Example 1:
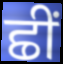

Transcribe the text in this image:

ਛੀਂ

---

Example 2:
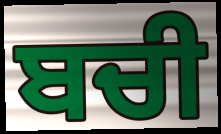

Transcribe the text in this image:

ਬਚੀ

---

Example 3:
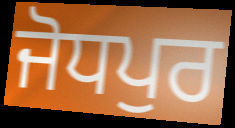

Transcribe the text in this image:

ਜੋਧਪੁਰ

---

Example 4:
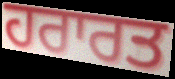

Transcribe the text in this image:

ਹਰਾਰਤ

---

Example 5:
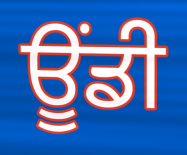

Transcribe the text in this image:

ਊਂਡੀ